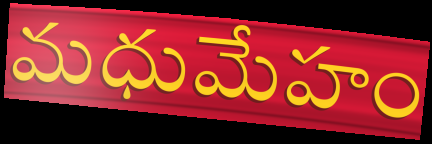
మధుమేహం